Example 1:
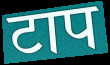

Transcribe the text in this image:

टाप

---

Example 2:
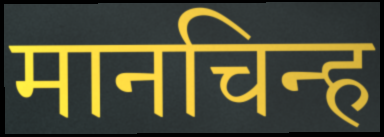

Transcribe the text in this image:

मानचिन्ह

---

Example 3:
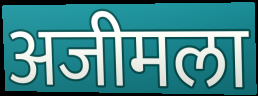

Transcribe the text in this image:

अजीमला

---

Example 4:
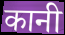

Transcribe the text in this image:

कानी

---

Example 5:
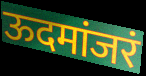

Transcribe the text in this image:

ऊदमांजरं